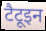
टैटूइन